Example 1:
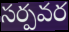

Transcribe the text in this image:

సర్పవర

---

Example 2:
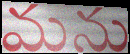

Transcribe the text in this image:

మను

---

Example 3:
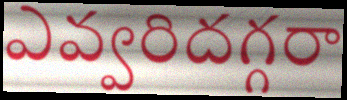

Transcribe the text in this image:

ఎవ్వరిదగ్గరా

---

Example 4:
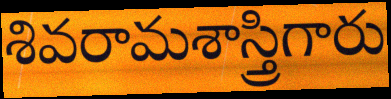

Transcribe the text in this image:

శివరామశాస్త్రిగారు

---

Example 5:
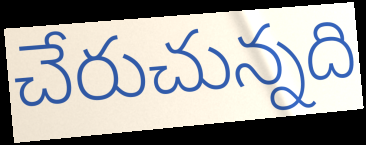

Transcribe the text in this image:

చేరుచున్నది